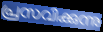
പ്രസവിക്കുന്നു